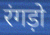
रंगड़ो